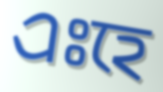
এঃহে